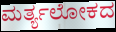
ಮರ್ತ್ಯಲೋಕದ